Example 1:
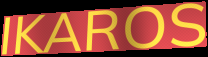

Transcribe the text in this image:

IKAROS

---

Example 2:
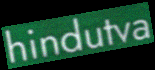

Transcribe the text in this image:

hindutva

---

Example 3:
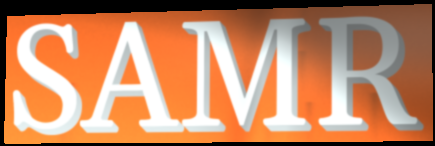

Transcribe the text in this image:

SAMR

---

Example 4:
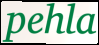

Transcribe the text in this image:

pehla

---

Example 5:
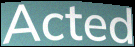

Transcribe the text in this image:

Acted